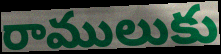
రాములుకు